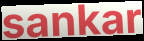
sankar